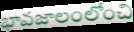
భావజాలంలోంచి